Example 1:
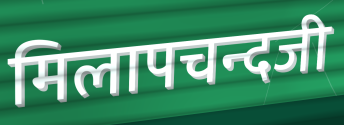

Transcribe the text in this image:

मिलापचन्दजी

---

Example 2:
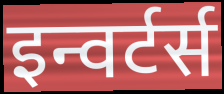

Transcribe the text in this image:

इन्वर्टर्स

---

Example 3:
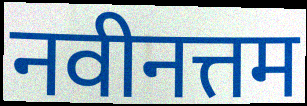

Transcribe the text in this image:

नवीनत्तम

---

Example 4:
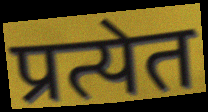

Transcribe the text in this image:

प्रत्येत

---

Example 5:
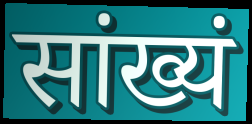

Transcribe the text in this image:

सांख्यं